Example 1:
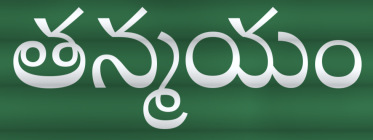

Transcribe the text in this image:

తన్మయం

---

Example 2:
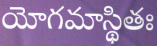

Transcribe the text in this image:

యోగమాస్థితః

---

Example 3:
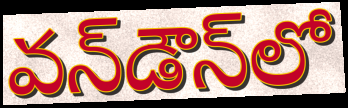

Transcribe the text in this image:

వన్‌డౌన్‌లో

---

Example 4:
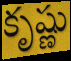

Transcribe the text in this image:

కృష్ణు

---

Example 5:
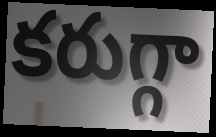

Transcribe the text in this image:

కరుగ్గా